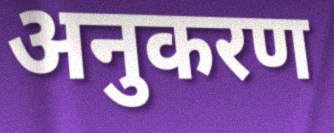
अनुकरण